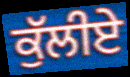
ਕੁੱਲੀਏ